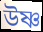
উষ্ণ